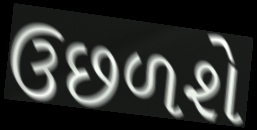
ઉછળશે